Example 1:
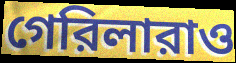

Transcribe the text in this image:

গেরিলারাও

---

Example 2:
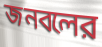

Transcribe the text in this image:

জনবলের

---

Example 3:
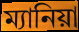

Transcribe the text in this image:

ম্যানিয়া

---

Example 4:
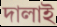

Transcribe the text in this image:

দালাই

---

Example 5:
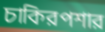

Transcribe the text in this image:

চাকিরপশার